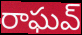
రాఘవ్